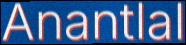
Anantlal